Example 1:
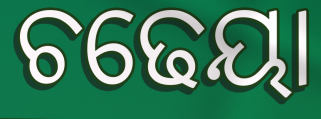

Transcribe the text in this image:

ଚଢେୟା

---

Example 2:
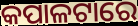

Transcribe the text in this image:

କପାଳଟାରେ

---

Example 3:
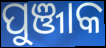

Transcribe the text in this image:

ପୁଞ୍ଜାକ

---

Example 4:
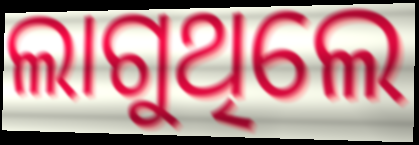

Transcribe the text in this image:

ଲାଗୁଥିଲେ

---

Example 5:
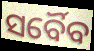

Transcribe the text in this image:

ସର୍ବୈବ